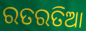
ରତରତିଆ